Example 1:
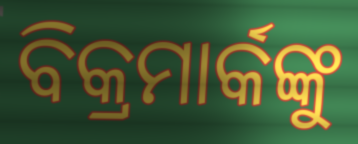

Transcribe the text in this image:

ବିକ୍ରମାର୍କଙ୍କୁ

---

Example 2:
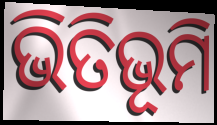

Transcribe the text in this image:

ଭିତିଭୂମି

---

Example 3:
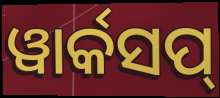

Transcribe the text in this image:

ୱାର୍କସପ୍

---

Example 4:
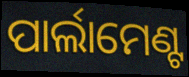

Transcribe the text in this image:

ପାର୍ଲାମେଣ୍ଟ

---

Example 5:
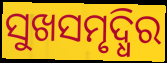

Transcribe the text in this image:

ସୁଖସମୃଦ୍ଧିର